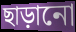
ছাড়ানো